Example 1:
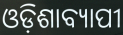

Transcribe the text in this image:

ଓଡ଼ିଶାବ୍ୟାପୀ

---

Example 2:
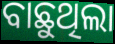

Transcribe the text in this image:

ବାଛୁଥିଲା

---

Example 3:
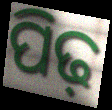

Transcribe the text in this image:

ପିଢ଼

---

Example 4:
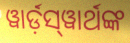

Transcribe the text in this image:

ୱାର୍ଡ଼ସ୍‌ୱାର୍ଥଙ୍କ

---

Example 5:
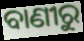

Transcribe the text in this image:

ବାଣୀରୁ